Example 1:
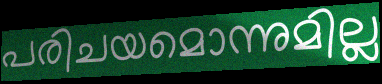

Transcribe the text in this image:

പരിചയമൊന്നുമില്ല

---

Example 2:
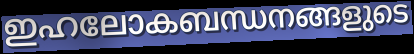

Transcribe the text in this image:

ഇഹലോകബന്ധനങ്ങളുടെ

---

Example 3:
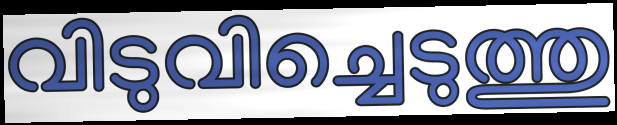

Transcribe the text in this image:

വിടുവിച്ചെടുത്തു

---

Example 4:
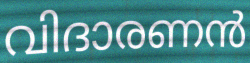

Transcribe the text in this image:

വിദാരണൻ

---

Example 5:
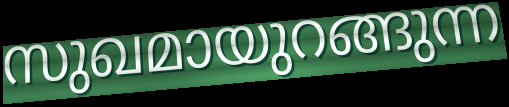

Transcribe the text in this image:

സുഖമായുറങ്ങുന്ന